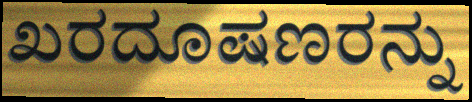
ಖರದೂಷಣರನ್ನು